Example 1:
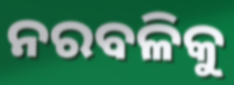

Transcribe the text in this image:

ନରବଳିକୁ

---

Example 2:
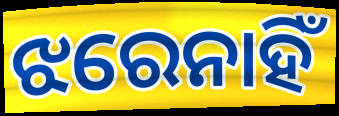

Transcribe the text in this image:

ଝରେନାହିଁ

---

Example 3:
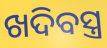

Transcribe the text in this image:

ଖଦିବସ୍ତ୍ର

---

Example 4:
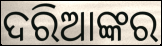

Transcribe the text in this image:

ଦରିଆଙ୍କର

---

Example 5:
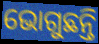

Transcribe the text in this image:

ଭୋଗୁଛନ୍ତି